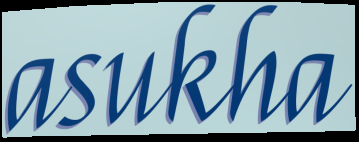
asukha